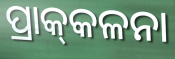
ପ୍ରାକ୍‌କଳନା